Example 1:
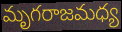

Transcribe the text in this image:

మృగరాజమధ్య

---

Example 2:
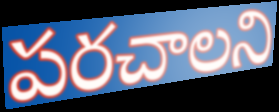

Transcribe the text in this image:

పరచాలని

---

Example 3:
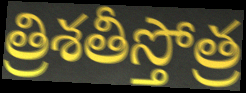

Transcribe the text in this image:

త్రిశతీస్తోత్ర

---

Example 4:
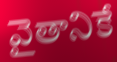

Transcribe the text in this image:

వైతానికే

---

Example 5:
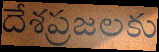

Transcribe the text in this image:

దేశప్రజలకు